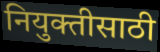
नियुक्तीसाठी